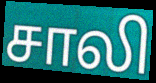
சாலி